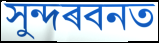
সুন্দৰবনত